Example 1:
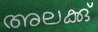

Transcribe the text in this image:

അലക്കു്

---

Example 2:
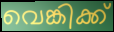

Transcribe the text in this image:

വെങ്കിക്ക്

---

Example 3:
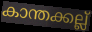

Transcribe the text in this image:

കാന്തക്കല്ല്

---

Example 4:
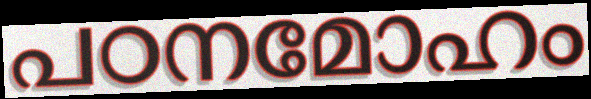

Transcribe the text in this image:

പഠനമോഹം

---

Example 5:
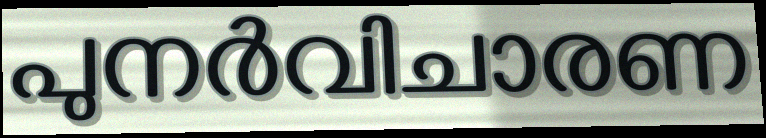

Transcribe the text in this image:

പുനർവിചാരണ